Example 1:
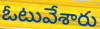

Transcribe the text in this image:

ఓటువేశారు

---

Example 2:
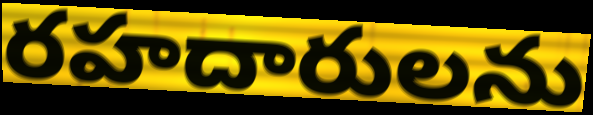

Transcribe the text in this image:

రహదారులను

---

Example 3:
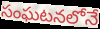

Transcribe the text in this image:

సంఘటనలోనే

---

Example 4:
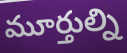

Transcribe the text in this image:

మూర్తుల్ని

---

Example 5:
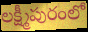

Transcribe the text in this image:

లక్ష్మీపురంలో